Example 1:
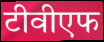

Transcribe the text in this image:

टीवीएफ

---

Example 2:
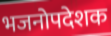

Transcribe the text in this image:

भजनोपदेशक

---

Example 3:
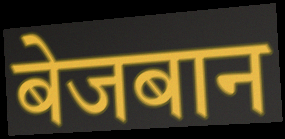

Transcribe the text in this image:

बेजबान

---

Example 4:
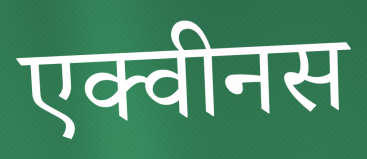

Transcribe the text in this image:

एक्वीनस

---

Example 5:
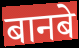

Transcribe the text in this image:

बानबे